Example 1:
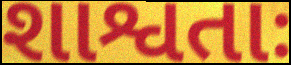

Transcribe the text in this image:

શાશ્વતાઃ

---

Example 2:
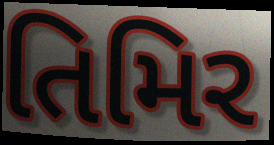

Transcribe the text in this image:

તિમિર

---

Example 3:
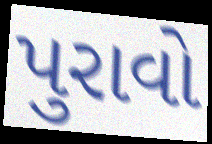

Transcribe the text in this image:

પુરાવો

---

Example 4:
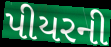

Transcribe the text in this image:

પીયરની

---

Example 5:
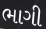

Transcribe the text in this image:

ભાગી